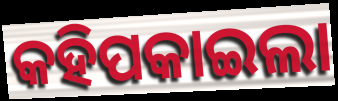
କହିପକାଇଲା